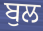
ਬੁਲ